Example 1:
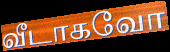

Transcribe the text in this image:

வீடாகவோ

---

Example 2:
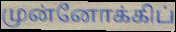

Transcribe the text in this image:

முன்னோக்கிப்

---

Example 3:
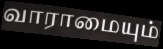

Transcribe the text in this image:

வாராமையும்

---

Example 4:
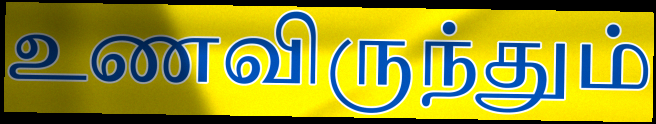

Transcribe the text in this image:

உணவிருந்தும்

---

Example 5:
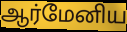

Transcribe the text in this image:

ஆர்மேனிய